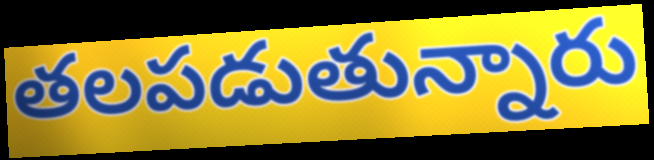
తలపడుతున్నారు